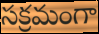
సక్రమంగా